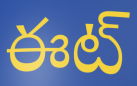
ఈట్